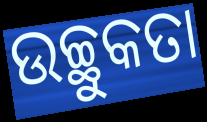
ଉଚ୍ଛୁକତା